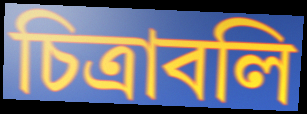
চিত্রাবলি